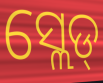
ସ୍ଲେଡ୍